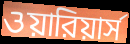
ওয়ারিয়ার্স